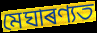
মেঘাৰণ্যত